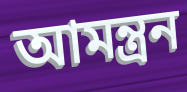
আমন্ত্রন